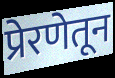
प्रेरणेतून